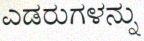
ಎಡರುಗಳನ್ನು